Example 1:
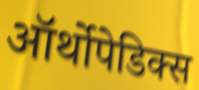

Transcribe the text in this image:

ऑर्थोपेडिक्स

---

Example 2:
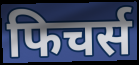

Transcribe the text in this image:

फिचर्स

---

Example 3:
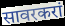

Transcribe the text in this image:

सावरकरां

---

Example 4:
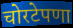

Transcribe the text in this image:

चोरटेपणा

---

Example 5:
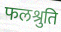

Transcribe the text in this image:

फलश्रुति